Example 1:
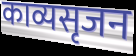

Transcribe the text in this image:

काव्यसृजन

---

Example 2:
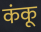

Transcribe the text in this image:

कंकू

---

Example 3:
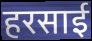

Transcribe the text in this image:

हरसाई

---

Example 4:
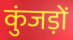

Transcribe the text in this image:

कुंजड़ों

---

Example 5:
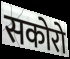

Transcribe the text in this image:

सकोरो